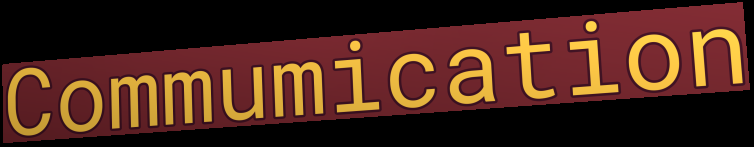
Commumication